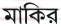
মাকির